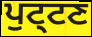
ਪੁਟ੍ਟਣ